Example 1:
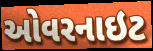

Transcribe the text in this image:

ઓવરનાઇટ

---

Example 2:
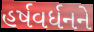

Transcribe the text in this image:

હર્ષવર્ધનને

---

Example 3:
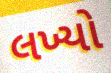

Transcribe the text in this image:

લખ્યો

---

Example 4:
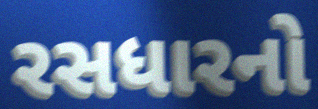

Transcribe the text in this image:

રસધારનો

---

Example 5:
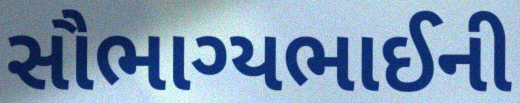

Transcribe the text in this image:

સૌભાગ્યભાઈની